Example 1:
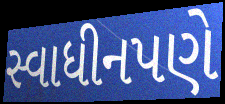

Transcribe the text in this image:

સ્વાધીનપણે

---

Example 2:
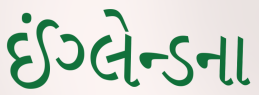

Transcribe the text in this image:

ઈંગ્લેન્ડના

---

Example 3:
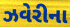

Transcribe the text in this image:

ઝવેરીના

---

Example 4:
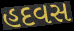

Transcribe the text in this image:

હદવસ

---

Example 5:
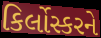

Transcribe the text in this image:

કિર્લોસ્કરને